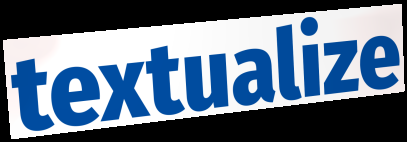
textualize